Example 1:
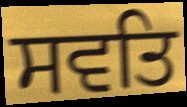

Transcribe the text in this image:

ਸਵਤਿ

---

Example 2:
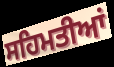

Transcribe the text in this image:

ਸਹਿਮਤੀਆਂ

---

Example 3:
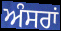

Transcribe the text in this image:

ਅੰਸਰਾਂ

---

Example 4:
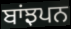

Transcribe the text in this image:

ਬਾਂਝਪਨ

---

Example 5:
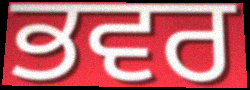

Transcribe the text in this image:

ਭਵਰ